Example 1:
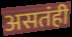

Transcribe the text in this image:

असतंही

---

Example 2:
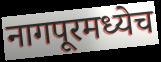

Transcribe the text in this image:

नागपूरमध्येच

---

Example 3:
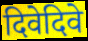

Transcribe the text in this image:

दिवेदिवे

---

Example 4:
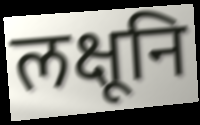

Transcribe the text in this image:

लक्षूनि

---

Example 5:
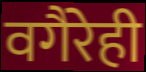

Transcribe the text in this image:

वगैरेही